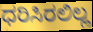
ಧರಿಸಿರಲಿಲ್ಲ